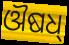
ଔଷଧ୍